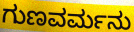
ಗುಣವರ್ಮನು